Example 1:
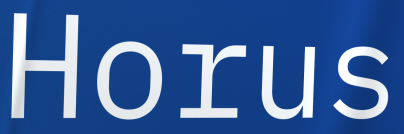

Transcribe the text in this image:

Horus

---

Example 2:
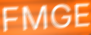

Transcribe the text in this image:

FMGE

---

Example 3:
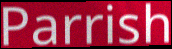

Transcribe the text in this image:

Parrish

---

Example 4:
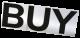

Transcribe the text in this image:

BUY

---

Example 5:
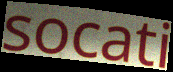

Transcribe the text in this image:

socati